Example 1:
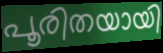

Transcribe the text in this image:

പൂരിതയായി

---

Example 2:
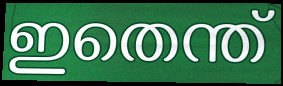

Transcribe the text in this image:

ഇതെന്ത്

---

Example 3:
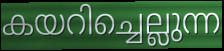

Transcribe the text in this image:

കയറിച്ചെല്ലുന്ന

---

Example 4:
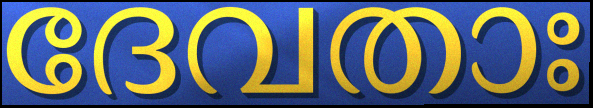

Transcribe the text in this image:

ദേവതാഃ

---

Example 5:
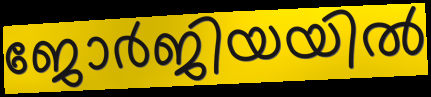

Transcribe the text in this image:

ജോർജിയയിൽ